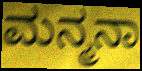
ಮನ್ಮನಾ